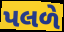
પલળે